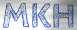
MKH